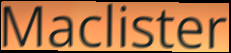
Maclister